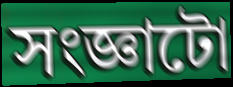
সংজ্ঞাটো